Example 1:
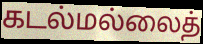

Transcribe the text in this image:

கடல்மல்லைத்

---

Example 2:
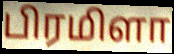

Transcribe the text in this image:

பிரமிளா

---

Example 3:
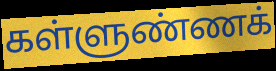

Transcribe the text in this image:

கள்ளுண்ணக்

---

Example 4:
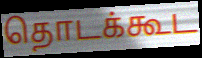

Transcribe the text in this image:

தொடக்கூட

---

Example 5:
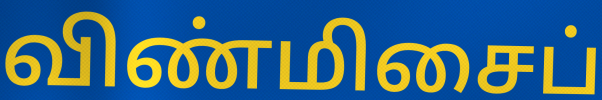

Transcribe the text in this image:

விண்மிசைப்